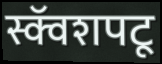
स्क्वॅशपटू